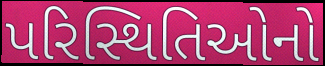
પરિસ્થિતિઓનો